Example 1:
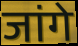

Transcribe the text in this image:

जांगे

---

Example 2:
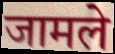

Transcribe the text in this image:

जामले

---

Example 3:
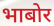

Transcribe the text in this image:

भाबोर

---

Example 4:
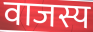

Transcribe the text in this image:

वाजस्य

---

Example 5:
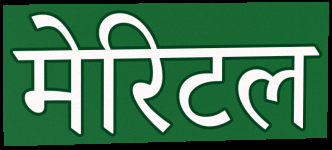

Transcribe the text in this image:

मेरिटल